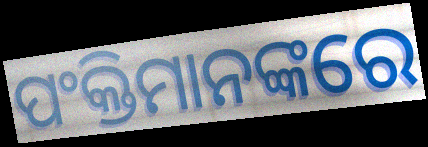
ପଂକ୍ତିମାନଙ୍କରେ